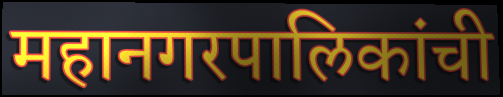
महानगरपालिकांची